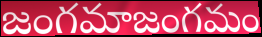
జంగమాజంగమం